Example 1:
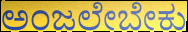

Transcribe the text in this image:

ಅಂಜಲೇಬೇಕು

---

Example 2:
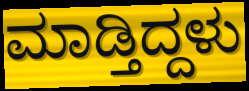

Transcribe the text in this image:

ಮಾಡ್ತಿದ್ದಳು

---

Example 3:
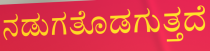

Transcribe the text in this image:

ನಡುಗತೊಡಗುತ್ತದೆ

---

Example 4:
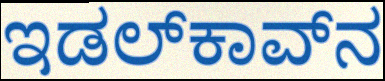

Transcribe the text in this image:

ಇಡಲ್‌ಕಾವ್‌ನ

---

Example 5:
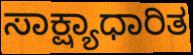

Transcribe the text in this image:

ಸಾಕ್ಷ್ಯಾಧಾರಿತ